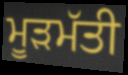
ਮੂੜਮੱਤੀ